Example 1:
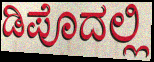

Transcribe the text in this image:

ಡಿಪೊದಲ್ಲಿ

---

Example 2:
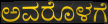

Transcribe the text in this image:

ಅವರೊಳಗೆ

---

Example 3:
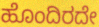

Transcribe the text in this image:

ಹೊಂದಿರದೇ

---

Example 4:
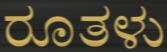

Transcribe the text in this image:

ರೂತಳು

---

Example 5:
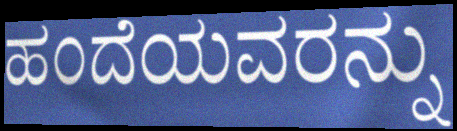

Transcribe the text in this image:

ಹಂದೆಯವರನ್ನು